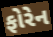
ફોરેન